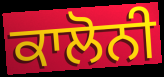
ਕਾਲੋਨੀ